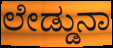
ಲೇಡ್ಡುನಾ